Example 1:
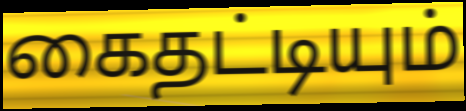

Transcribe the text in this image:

கைதட்டியும்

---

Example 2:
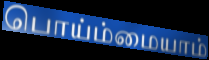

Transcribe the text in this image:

பொய்ம்மையாம்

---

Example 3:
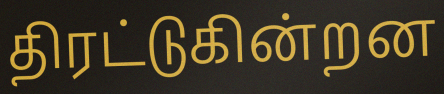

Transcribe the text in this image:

திரட்டுகின்றன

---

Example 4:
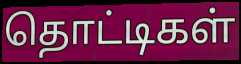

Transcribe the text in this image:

தொட்டிகள்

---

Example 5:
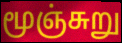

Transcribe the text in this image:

மூஞ்சுறு